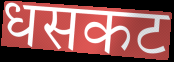
धसकट